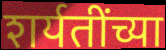
शर्यतींच्या